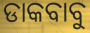
ଡାକବାବୁ